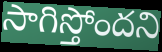
సాగిస్తోందని